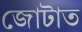
জোটাত